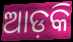
ଆଡ଼କି